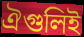
ঐগুলিই